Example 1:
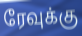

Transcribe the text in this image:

ரேவுக்கு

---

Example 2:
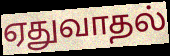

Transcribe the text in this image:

ஏதுவாதல்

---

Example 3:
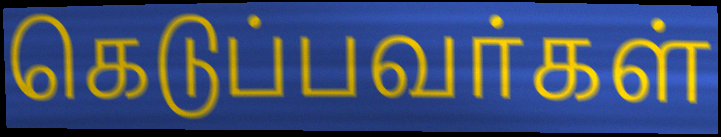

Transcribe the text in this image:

கெடுப்பவர்கள்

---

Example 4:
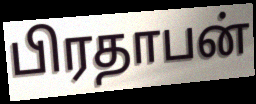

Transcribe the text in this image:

பிரதாபன்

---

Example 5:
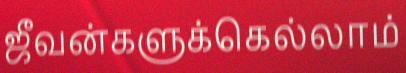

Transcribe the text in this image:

ஜீவன்களுக்கெல்லாம்